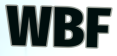
WBF